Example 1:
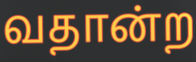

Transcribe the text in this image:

வதான்ற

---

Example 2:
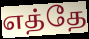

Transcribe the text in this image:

எத்தே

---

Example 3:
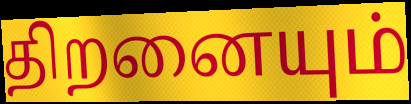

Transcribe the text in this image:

திறனையும்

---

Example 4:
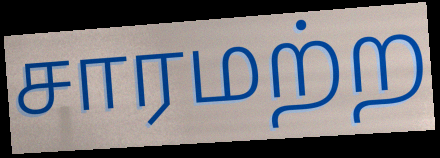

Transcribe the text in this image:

சாரமற்ற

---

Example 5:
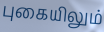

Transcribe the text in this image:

புகையிலும்